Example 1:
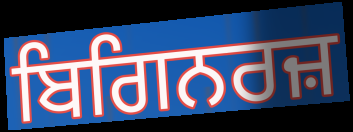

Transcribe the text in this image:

ਬਿਗਿਨਰਜ਼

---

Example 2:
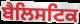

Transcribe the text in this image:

ਬੈਲਿਸਟਿਕ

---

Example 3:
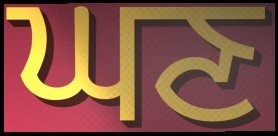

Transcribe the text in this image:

ਘਣ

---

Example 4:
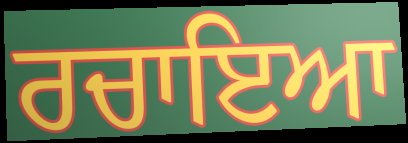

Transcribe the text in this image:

ਰਚਾਇਆ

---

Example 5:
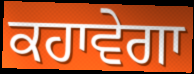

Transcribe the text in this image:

ਕਹਾਵੇਗਾ